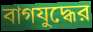
বাগযুদ্ধের